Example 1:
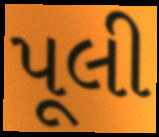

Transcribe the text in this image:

પૂલી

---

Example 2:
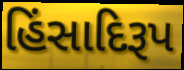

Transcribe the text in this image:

હિંસાદિરૂપ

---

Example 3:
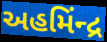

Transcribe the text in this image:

અહમિંન્દ્ર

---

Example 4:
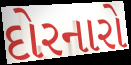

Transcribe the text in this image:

દોરનારો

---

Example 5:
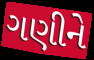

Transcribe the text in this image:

ગણીને